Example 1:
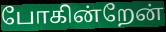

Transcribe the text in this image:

போகின்றேன்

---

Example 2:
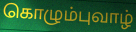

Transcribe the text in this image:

கொழும்புவாழ்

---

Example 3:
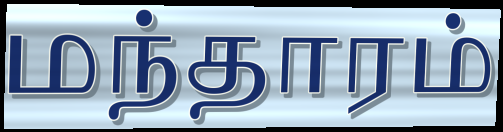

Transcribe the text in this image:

மந்தாரம்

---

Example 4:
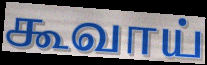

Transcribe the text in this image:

கூவாய்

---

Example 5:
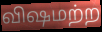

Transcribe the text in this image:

விஷமற்ற